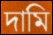
দামি